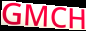
GMCH